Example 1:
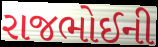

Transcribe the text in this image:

રાજભોઈની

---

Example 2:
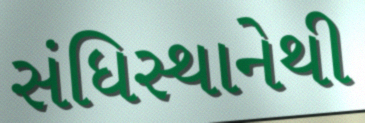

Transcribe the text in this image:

સંધિસ્થાનેથી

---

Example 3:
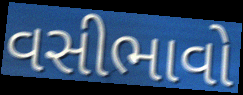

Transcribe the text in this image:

વસીભાવો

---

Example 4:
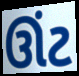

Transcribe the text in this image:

ઊંટ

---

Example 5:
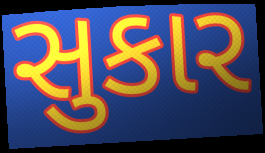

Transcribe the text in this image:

સુકાર